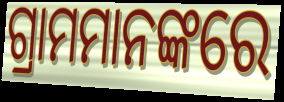
ଗ୍ରାମମାନଙ୍କରେ